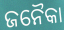
ଜନୈକା